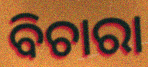
ବିଚାରା